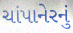
ચાંપાનેરનું